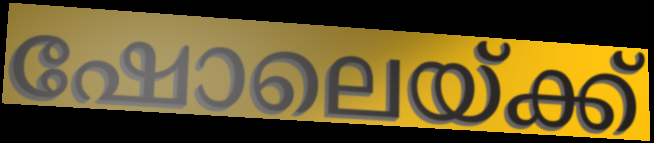
ഷോലെയ്ക്ക്